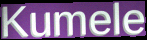
Kumele